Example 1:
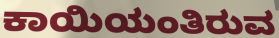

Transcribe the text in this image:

ಕಾಯಿಯಂತಿರುವ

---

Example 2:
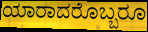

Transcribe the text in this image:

ಯಾರಾದರೊಬ್ಬರೂ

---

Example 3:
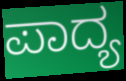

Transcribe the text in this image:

ಪಾದ್ಯ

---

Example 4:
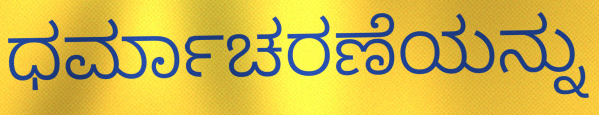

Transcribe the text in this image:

ಧರ್ಮಾಚರಣೆಯನ್ನು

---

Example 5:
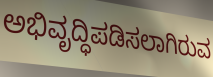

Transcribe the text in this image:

ಅಭಿವೃದ್ಧಿಪಡಿಸಲಾಗಿರುವ